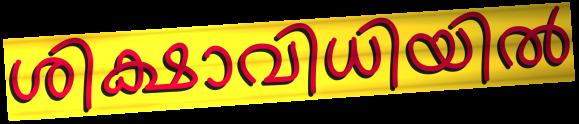
ശിക്ഷാവിധിയിൽ